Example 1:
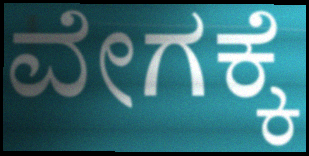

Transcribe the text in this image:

ವೇಗಕ್ಕೆ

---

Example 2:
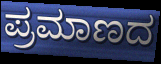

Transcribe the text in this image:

ಪ್ರಮಾಣದ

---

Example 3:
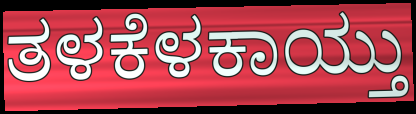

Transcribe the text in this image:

ತಳಕೆಳಕಾಯ್ತು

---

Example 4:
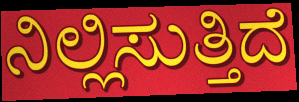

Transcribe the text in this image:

ನಿಲ್ಲಿಸುತ್ತಿದೆ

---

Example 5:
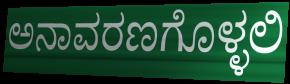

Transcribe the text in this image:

ಅನಾವರಣಗೊಳ್ಳಲಿ